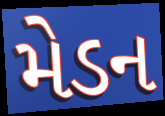
મેડન